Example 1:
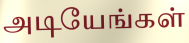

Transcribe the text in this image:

அடியேங்கள்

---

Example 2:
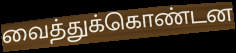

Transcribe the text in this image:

வைத்துக்கொண்டன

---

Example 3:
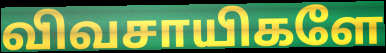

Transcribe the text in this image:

விவசாயிகளே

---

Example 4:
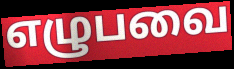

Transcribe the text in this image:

எழுபவை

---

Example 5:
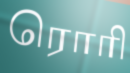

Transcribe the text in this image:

ரொரி